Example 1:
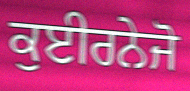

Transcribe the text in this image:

ਕੁਈਰਨੇਜੋ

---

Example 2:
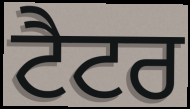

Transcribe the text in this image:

ਟੈਟਰ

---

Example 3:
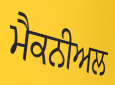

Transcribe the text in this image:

ਮੈਕਨੀਅਲ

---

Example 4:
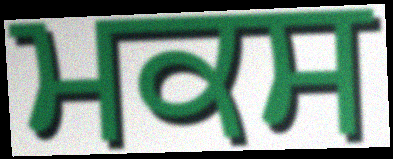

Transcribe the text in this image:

ਮਕਸ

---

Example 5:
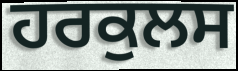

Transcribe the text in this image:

ਹਰਕੁਲਸ